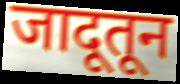
जादूतून